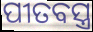
ପୀତବସ୍ତ୍ର